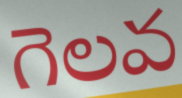
గెలవ